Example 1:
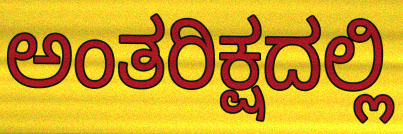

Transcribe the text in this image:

ಅಂತರಿಕ್ಷದಲ್ಲಿ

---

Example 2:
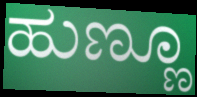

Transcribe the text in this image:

ಹುಣ್ಣೂ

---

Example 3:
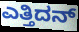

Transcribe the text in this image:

ಎತ್ತಿದನ್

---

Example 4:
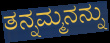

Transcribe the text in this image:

ತನ್ನಮ್ಮನನ್ನು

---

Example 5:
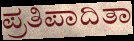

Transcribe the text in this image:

ಪ್ರತಿಪಾದಿತಾ